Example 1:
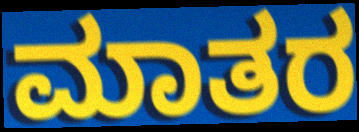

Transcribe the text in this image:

ಮಾತರ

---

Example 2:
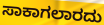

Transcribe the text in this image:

ಸಾಕಾಗಲಾರದು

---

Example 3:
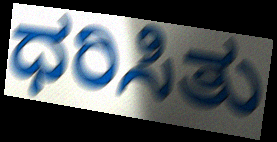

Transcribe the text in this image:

ಧರಿಸಿತು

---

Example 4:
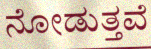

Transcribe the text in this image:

ನೋಡುತ್ತವೆ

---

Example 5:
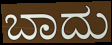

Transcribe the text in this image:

ಬಾದು